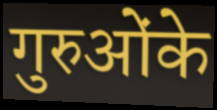
गुरुओंके